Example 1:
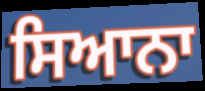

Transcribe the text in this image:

ਸਿਆਨਾ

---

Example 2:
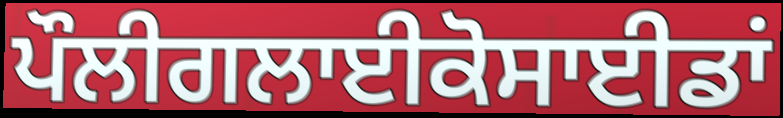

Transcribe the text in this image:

ਪੌਲੀਗਲਾਈਕੋਸਾਈਡਾਂ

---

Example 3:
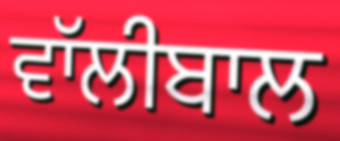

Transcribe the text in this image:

ਵਾੱਲੀਬਾਲ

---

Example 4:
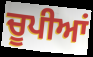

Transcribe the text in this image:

ਚੂਪੀਆਂ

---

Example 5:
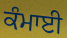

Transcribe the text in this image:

ਕੰਮਾਈ